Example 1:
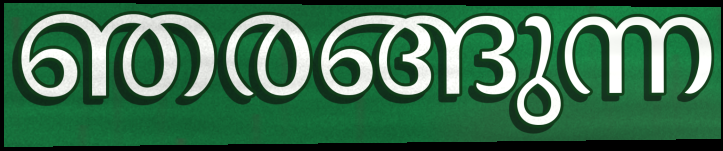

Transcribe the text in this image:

ഞരങ്ങുന്ന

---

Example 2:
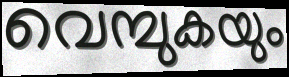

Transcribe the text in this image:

വെമ്പുകയും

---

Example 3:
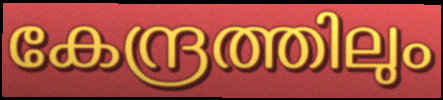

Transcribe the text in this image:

കേന്ദ്രത്തിലും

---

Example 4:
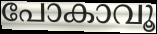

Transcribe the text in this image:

പോകാവൂ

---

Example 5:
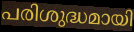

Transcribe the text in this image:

പരിശുദ്ധമായി